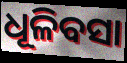
ଧୂଳିବସା